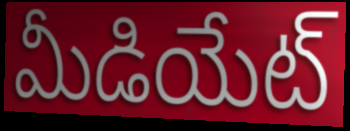
మీడియేట్